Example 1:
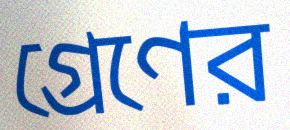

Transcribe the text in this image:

গ্রেণের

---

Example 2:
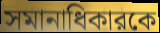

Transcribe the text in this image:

সমানাধিকারকে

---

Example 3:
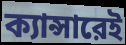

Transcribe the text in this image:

ক্যান্সারেই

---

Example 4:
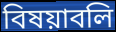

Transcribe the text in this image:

বিষয়াবলি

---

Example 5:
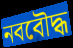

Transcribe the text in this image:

নববৌদ্ধ